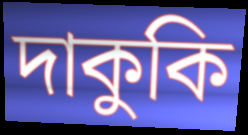
দাকুকি